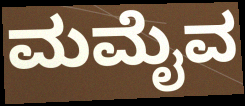
ಮಮೈವ